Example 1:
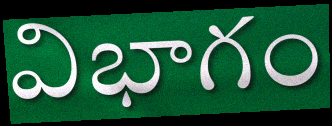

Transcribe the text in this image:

విభాగం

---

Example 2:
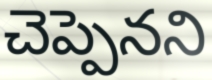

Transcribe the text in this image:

చెప్పెనని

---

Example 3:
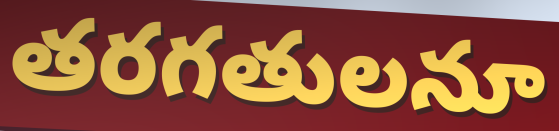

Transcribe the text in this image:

తరగతులనూ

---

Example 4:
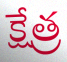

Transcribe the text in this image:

క్షేత్ర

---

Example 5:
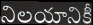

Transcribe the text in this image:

నిలయానికీ